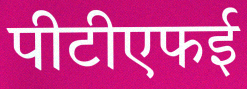
पीटीएफई